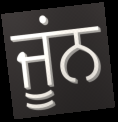
ਜੂਂਨ